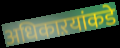
अधिकाऱयांकडे